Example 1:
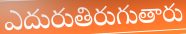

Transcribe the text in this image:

ఎదురుతిరుగుతారు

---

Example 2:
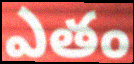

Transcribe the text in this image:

ఎతం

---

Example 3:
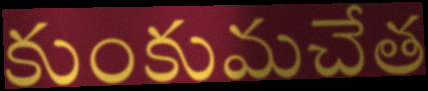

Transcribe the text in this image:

కుంకుమచేత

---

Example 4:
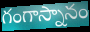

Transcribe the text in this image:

గంగాస్నానం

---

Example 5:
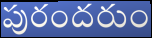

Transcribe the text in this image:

పురందరుం